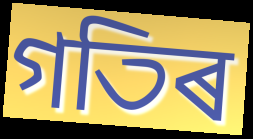
গতিৰ